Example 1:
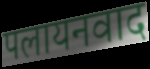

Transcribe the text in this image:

पलायनवाद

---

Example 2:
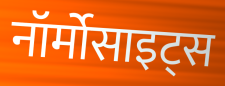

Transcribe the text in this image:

नॉर्मोसाइट्स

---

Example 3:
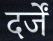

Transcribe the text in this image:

दर्जें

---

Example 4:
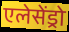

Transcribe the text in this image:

एलेसेंड्रो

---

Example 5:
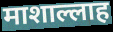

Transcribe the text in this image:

माशाल्लाह